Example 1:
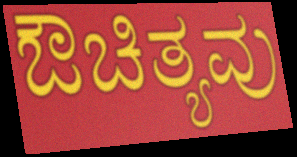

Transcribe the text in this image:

ಔಚಿತ್ಯವು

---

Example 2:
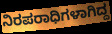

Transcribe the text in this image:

ನಿರಪರಾಧಿಗಳಾಗಿದ್ದ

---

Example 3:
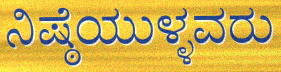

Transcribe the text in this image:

ನಿಷ್ಠೆಯುಳ್ಳವರು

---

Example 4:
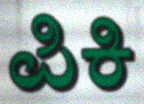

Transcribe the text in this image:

ಪಿಕಿ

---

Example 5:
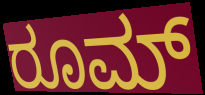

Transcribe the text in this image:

ರೂಮ್